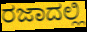
ರಜಾದಲ್ಲಿ